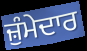
ਜ਼ੁੰਮੇਦਾਰ